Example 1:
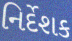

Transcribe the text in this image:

નિર્દેશક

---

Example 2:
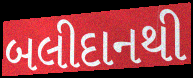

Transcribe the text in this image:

બલીદાનથી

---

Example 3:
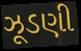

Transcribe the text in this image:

ઝૂડણી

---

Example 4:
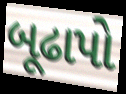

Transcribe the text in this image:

બૂઢાપો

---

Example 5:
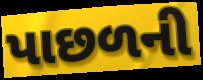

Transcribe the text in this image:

પાછળની